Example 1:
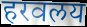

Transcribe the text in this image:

हरवलय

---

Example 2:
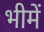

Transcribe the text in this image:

भीमें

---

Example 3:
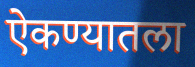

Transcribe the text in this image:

ऐकण्यातला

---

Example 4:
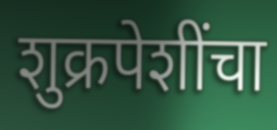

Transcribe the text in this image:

शुक्रपेशींचा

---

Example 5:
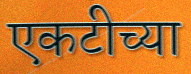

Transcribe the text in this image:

एकटीच्या